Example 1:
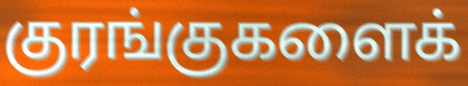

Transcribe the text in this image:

குரங்குகளைக்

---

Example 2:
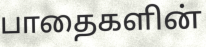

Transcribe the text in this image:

பாதைகளின்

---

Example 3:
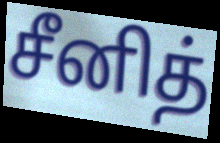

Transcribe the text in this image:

சீனித்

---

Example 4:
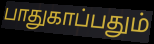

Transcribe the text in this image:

பாதுகாப்பதும்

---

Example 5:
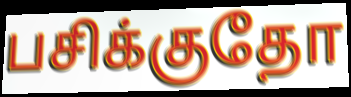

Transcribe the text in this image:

பசிக்குதோ